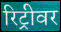
रिट्रीवर